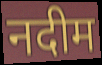
नदीम